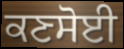
ਕਣਸੋਈ